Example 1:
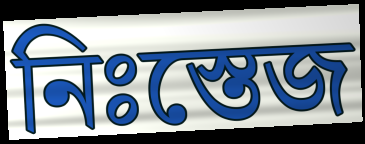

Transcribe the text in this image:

নিঃস্তেজ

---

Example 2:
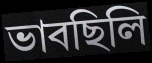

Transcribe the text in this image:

ভাবছিলি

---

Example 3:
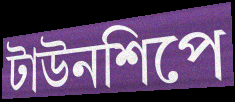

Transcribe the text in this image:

টাউনশিপে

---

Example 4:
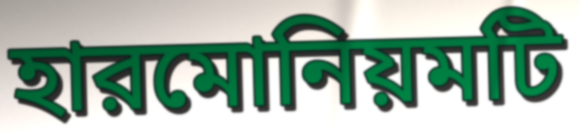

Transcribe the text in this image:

হারমোনিয়মটি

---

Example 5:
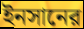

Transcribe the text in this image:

ইনসানের